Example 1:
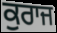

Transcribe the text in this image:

ਕੁਰਾਜ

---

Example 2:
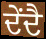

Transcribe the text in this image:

ਦੇਂਦੈ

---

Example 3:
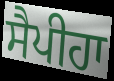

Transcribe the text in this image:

ਸੈਪੀਹਾ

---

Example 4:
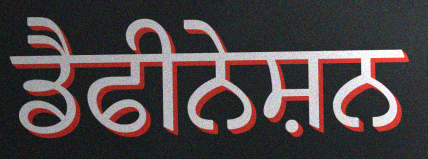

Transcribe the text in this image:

ਡੈਫੀਨੇਸ਼ਨ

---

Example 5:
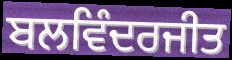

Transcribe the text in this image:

ਬਲਵਿੰਦਰਜੀਤ